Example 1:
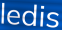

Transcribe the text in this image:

ledis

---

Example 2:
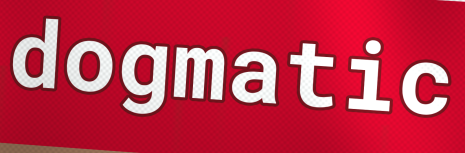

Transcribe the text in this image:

dogmatic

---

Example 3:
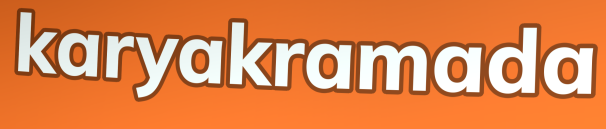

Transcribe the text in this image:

karyakramada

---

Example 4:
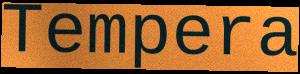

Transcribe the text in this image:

Tempera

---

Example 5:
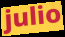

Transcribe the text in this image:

julio